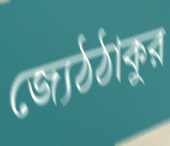
জ্যেঠঠাকুর